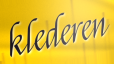
klederen